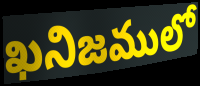
ఖనిజములో